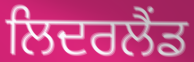
ਲਿਦਰਲੈਂਡ